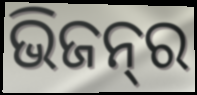
ଭିଜନ୍‌ର